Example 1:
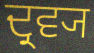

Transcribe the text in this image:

ਦ੍ਰਵ੍ਯ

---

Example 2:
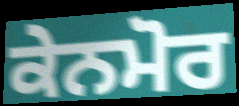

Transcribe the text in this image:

ਕੇਨਮੋਰ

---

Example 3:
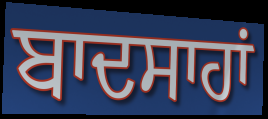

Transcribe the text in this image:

ਬਾਦਸਾਹਾਂ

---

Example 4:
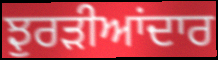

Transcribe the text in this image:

ਝੁਰੜੀਆਂਦਾਰ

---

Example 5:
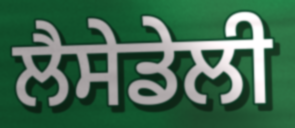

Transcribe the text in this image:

ਲੈਸੇਡੇਲੀ